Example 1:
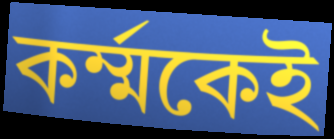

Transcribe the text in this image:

কর্ম্মকেই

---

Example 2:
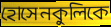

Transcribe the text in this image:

হোসেনকুলিকে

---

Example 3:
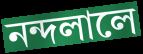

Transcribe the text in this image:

নন্দলালে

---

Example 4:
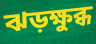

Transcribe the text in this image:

ঝড়ক্ষুব্ধ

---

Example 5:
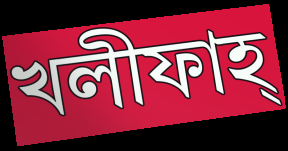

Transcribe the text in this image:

খলীফাহ্